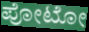
ಪೋಟೋ